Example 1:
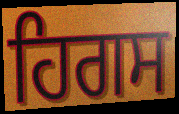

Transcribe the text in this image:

ਹਿਗਸ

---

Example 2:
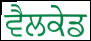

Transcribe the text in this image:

ਵੈਲਕੇਡ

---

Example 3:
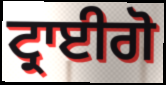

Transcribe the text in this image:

ਟ੍ਰਾਈਗੋ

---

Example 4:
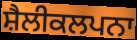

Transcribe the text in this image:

ਸ਼ੈਲੀਕਲਪਨਾ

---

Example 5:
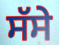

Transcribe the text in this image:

ਸੱਸੇ